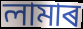
লামাৰ